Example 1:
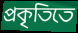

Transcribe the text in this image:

প্রকৃতিতে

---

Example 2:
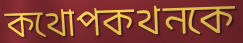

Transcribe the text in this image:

কথোপকথনকে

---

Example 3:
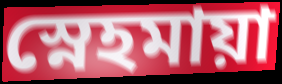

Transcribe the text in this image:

স্নেহমায়া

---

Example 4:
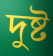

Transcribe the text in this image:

দুষ্ট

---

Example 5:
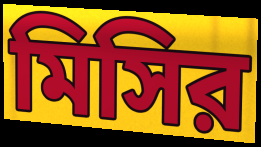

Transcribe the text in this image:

মিসির